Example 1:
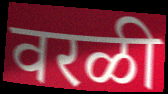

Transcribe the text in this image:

वरळी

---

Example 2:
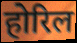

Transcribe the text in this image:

होरिल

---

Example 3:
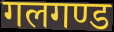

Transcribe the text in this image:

गलगण्ड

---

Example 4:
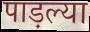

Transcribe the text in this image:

पाड़ल्या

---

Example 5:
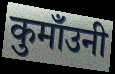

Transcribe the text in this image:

कुमाँउनी